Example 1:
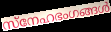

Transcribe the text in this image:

സ്നേഹഭംഗങ്ങൾ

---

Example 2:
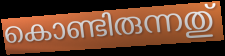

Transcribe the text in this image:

കൊണ്ടിരുന്നതു്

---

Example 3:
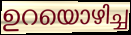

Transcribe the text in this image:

ഉറയൊഴിച്ച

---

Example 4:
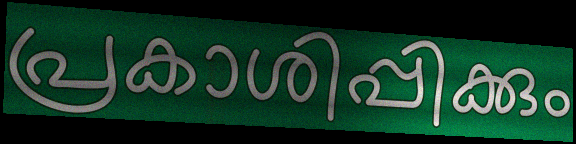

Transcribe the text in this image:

പ്രകാശിപ്പിക്കും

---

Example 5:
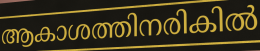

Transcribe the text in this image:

ആകാശത്തിനരികിൽ